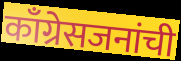
काँग्रेसजनांची